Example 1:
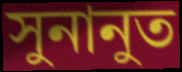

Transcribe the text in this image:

সুনানুত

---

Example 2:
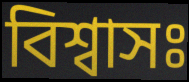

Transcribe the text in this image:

বিশ্বাসঃ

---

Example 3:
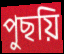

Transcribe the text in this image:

পুছয়ি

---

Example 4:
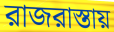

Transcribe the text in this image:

রাজরাস্তায়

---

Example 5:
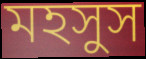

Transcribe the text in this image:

মহসুস